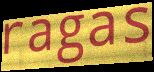
ragas